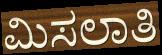
ಮಿಸಲಾತಿ